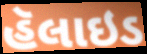
હૅલાઇડ